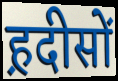
ह़दीसों